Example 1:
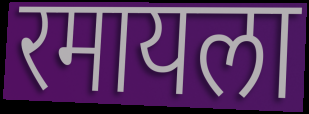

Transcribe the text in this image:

रमायला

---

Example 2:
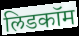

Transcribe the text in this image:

लिडकॉम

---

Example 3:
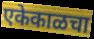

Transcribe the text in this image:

एकेकाळचा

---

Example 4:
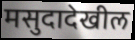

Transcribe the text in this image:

मसुदादेखील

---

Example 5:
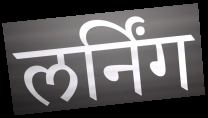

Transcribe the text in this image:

लर्निंग